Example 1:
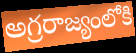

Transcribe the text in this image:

అగ్రరాజ్యంలోకి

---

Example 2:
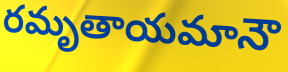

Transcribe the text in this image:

రమృతాయమానౌ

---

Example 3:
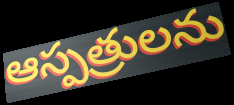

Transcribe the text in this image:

ఆస్పత్రులను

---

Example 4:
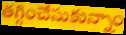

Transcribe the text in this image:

తగ్గించేసుకున్నాం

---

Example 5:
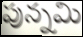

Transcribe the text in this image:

పున్నమి